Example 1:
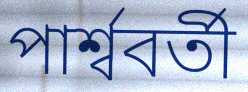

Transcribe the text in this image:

পার্শ্ববর্তী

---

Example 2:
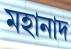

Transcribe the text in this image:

মহানাদ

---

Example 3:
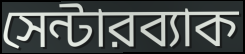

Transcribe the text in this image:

সেন্টারব্যাক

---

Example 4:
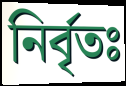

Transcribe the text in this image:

নির্বৃতঃ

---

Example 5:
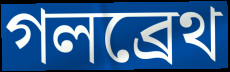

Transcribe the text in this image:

গলব্রেথ